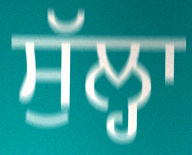
ਸੁੱਲ੍ਹਾ